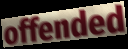
offended